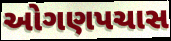
ઓગણપચાસ